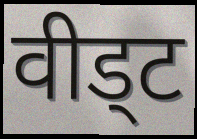
वीड्ट